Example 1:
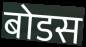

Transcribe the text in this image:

बोडस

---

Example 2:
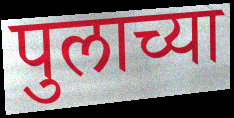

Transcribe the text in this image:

पुलाच्या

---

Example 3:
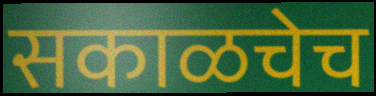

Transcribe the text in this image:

सकाळचेच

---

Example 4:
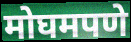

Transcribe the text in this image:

मोघमपणे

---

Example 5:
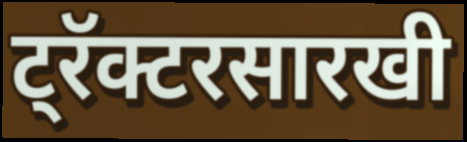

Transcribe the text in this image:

ट्रॅक्टरसारखी